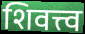
शिवत्त्व